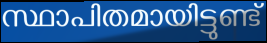
സ്ഥാപിതമായിട്ടുണ്ട്